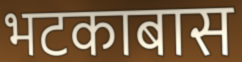
भटकाबास